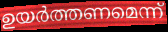
ഉയർത്തണമെന്ന്